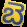
బె